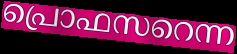
പ്രൊഫസറെന്ന